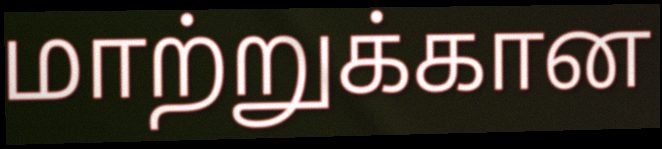
மாற்றுக்கான